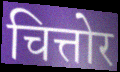
चित्तोर